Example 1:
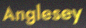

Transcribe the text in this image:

Anglesey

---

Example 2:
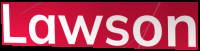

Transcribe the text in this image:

Lawson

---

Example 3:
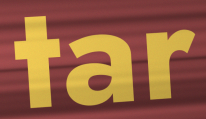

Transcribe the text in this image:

tar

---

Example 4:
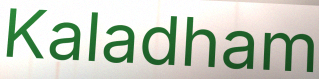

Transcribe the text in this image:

Kaladham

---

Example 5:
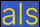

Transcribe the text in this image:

als